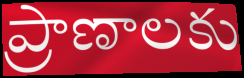
ప్రాణాలకు